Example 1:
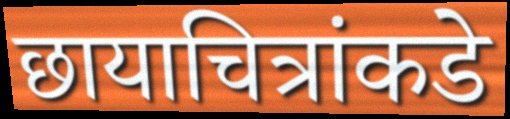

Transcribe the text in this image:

छायाचित्रांकडे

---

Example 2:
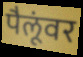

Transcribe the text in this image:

पैलूंवर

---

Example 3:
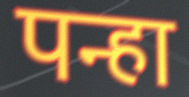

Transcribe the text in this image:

पन्हा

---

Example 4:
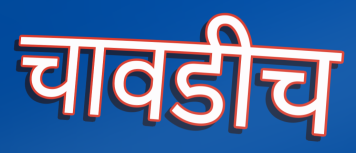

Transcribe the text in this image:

चावडीच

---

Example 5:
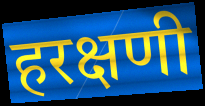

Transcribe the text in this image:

हरक्षणी